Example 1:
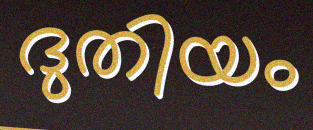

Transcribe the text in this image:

ദുതിയം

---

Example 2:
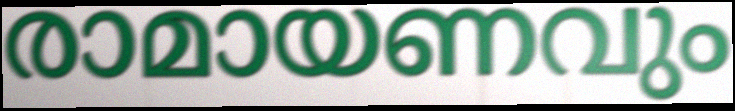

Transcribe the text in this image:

രാമായണവും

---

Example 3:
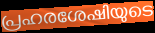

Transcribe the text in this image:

പ്രഹരശേഷിയുടെ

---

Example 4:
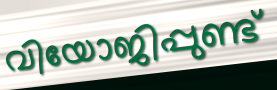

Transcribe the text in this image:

വിയോജിപ്പുണ്ട്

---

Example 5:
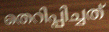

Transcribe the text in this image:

തെറിപ്പിച്ചത്